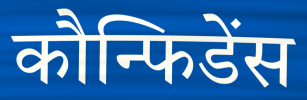
कौन्फिडेंस